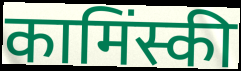
कामिंस्की